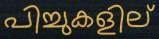
പിച്ചുകളില്